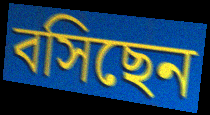
বসিছেন